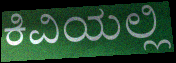
ಕಿವಿಯಲ್ಲಿ